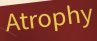
Atrophy